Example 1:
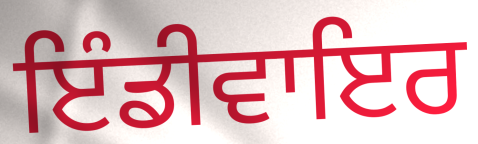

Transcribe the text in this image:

ਇੰਡੀਵਾਇਰ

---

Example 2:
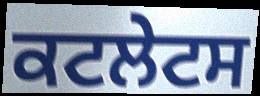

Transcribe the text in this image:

ਕਟਲੇਟਸ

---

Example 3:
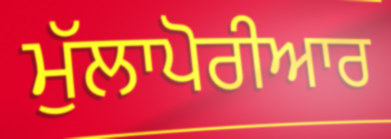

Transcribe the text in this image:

ਮੁੱਲਾਪੋਰੀਆਰ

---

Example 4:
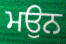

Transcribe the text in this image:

ਮਉਨ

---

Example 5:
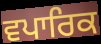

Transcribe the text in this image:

ਵਪਾਰਿਕ